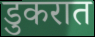
डुकरात